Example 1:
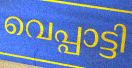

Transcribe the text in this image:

വെപ്പാട്ടി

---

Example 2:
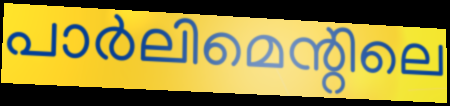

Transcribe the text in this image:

പാർലിമെന്റിലെ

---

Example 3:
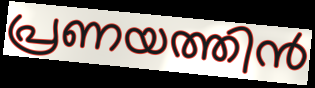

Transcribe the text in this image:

പ്രണയത്തിൻ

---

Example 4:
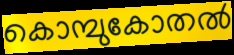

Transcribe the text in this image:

കൊമ്പുകോതൽ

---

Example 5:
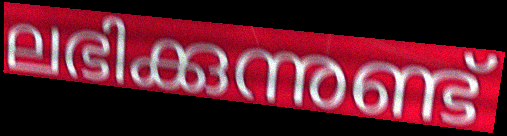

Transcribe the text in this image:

ലഭിക്കുന്നുണ്ട്